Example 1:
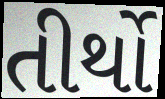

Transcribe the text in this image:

તીર્થો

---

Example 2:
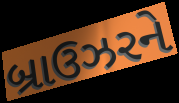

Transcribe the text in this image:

બ્રાઉઝરને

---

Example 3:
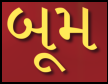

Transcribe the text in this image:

બૂમ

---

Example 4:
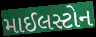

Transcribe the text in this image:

માઈલસ્ટોન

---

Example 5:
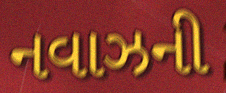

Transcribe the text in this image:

નવાઝની